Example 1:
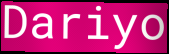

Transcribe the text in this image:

Dariyo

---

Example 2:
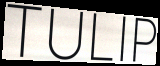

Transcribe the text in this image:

TULIP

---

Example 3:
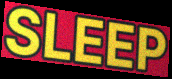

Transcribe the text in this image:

SLEEP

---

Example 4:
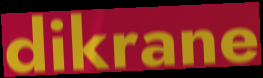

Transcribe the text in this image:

dikrane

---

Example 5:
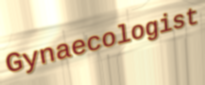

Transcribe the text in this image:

Gynaecologist